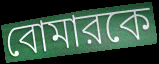
বোমারকে